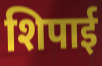
शिपाई